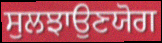
ਸੁਲਝਾਉਣਯੋਗ